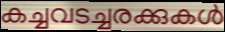
കച്ചവടച്ചരക്കുകൾ